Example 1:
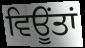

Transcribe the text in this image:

ਵਿਊਂਤਾਂ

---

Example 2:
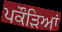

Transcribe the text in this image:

ਪਕੌਡ਼ਿਆਂ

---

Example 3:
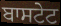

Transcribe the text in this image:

ਬਾਸਟੇਟ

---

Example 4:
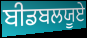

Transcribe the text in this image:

ਬੀਡਬਲਯੂਏ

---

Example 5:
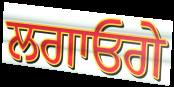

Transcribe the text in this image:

ਲਗਾਓਗੇ